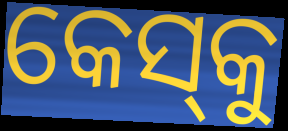
କେସ୍‌କୁ